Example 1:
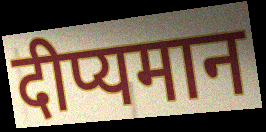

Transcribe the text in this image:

दीप्यमान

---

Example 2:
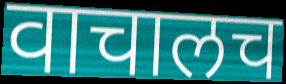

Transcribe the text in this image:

वाचालच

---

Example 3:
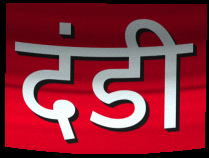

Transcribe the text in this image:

दंडी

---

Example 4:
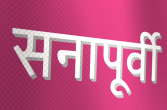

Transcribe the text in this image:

सनापूर्वी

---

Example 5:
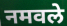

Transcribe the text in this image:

नमवले